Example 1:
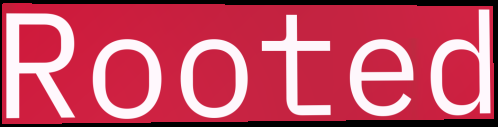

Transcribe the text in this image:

Rooted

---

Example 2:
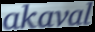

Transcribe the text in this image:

akaval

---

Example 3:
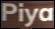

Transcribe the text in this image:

Piya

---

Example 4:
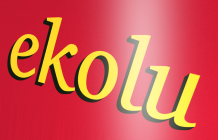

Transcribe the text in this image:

ekolu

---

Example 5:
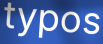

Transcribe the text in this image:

typos